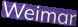
Weimar